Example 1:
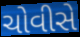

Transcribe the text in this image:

ચોવીસે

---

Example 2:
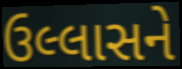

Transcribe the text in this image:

ઉલ્લાસને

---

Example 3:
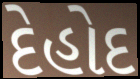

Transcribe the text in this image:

દેહોદ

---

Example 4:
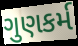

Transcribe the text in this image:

ગુણકર્મ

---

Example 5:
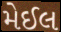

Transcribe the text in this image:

મેઈલ